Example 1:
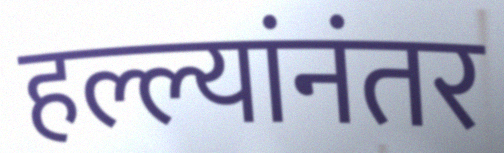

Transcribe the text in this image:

हल्ल्यांनंतर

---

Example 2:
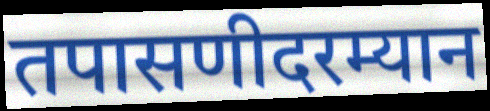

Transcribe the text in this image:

तपासणीदरम्यान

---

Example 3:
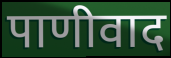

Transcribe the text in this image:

पाणीवाद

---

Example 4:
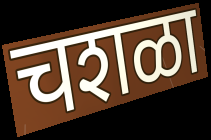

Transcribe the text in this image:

चशळा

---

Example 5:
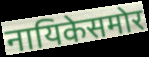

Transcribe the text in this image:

नायिकेसमोर